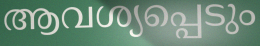
ആവശ്യപ്പെടും